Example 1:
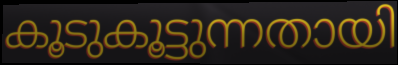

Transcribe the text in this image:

കൂടുകൂട്ടുന്നതായി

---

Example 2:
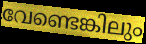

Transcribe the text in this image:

വേണ്ടെങ്കിലും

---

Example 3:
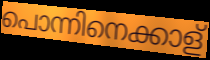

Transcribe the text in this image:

പൊന്നിനെക്കാള്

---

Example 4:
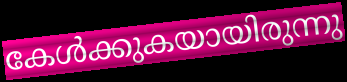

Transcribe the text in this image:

കേൾക്കുകയായിരുന്നു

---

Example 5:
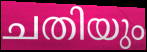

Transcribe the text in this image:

ചതിയും